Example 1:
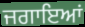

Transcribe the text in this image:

ਜਗਾਇਆਂ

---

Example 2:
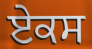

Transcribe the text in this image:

ਏਕਸ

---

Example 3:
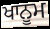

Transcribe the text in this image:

ਖਾਨੂਮ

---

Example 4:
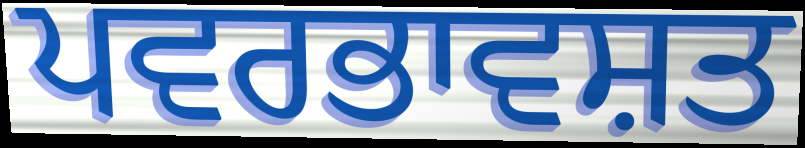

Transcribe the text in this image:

ਪਵਰਭਾਵਸ਼ਤ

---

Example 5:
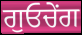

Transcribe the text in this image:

ਗੁਓਚੇਂਗ